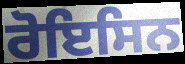
ਰੋਇਸਿਨ